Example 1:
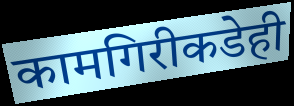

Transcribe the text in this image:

कामगिरीकडेही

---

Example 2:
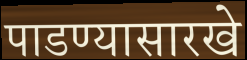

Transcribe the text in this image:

पाडण्यासारखे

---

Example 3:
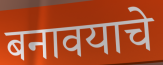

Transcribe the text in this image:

बनावयाचे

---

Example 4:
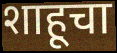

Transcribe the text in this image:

शाहूचा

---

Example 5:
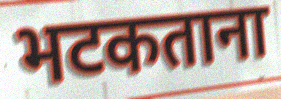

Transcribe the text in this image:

भटकताना